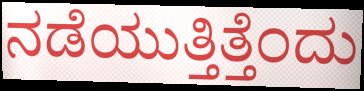
ನಡೆಯುತ್ತಿತ್ತೆಂದು